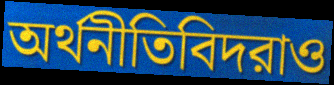
অর্থনীতিবিদরাও